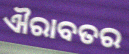
ଐରାବତର